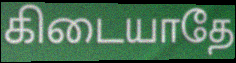
கிடையாதே